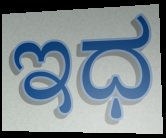
ಇಧ